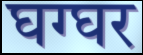
घग्घर